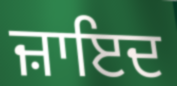
ਜ਼ਾਇਦ